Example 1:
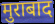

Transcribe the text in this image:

मुराबाद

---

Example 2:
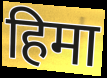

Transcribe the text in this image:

हिमा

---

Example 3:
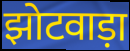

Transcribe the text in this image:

झोटवाड़ा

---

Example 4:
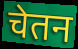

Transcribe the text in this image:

चेतन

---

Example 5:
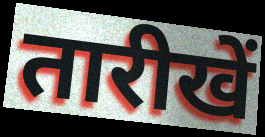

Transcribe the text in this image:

तारीखें